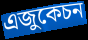
এজুকেচন